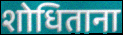
शोधिताना